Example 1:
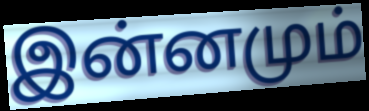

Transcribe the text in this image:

இன்னமும்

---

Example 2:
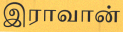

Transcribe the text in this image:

இராவான்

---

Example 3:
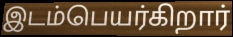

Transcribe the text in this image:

இடம்பெயர்கிறார்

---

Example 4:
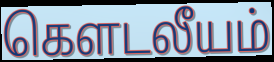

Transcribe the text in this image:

கெளடலீயம்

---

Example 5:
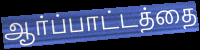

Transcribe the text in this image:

ஆர்ப்பாட்டத்தை